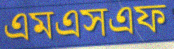
এমএসএফ